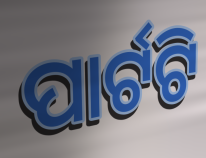
ପାର୍ଟଟି